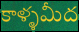
కాళ్ళమీద